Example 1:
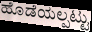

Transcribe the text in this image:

ಹೊಡೆಯಲ್ಪಟ್ಟು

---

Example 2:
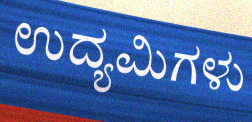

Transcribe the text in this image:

ಉದ್ಯಮಿಗಳು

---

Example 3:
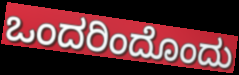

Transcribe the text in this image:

ಒಂದರಿಂದೊಂದು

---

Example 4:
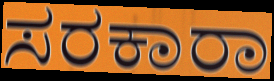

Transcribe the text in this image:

ಸರಕಾರಾ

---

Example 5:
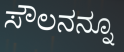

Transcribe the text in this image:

ಸೌಲನನ್ನೂ